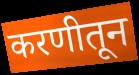
करणीतून